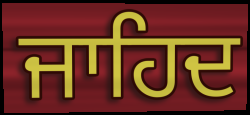
ਜਾਹਿਦ